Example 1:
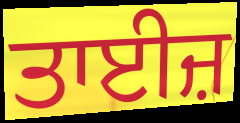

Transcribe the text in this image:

ਤਾਈਜ਼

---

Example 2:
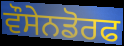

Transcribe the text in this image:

ਵੌਸੇਨਡੋਰਫ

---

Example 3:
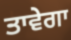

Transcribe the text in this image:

ਤਾਵੇਗਾ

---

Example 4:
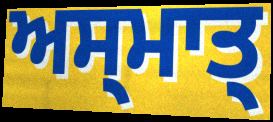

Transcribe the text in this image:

ਅਸ੍ਮਾਤ੍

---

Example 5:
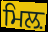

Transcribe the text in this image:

ਮਿਲ਼